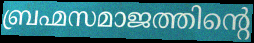
ബ്രഹ്മസമാജത്തിന്റെ